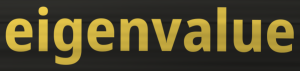
eigenvalue